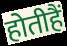
होतीहैं